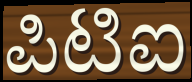
ಪಿಟಿಐ